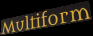
Multiform